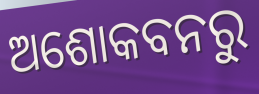
ଅଶୋକବନରୁ